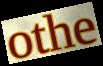
othe